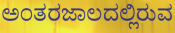
ಅಂತರಜಾಲದಲ್ಲಿರುವ